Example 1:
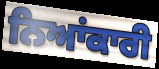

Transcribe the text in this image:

ਨਿਆਂਕਾਰੀ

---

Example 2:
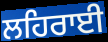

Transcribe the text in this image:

ਲਹਿਰਾਈ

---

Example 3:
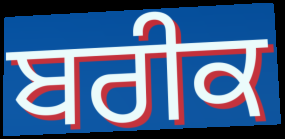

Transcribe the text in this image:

ਬਰੀਕ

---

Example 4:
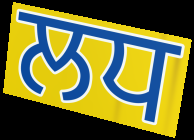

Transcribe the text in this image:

ਲਧ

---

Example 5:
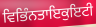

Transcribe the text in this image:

ਵਿਭਿੰਨਤਾਇਕੁਇਟੀ